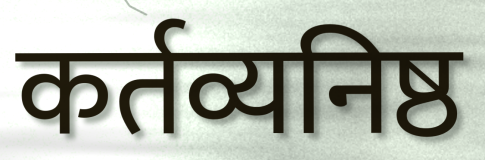
कर्तव्यनिष्ठ